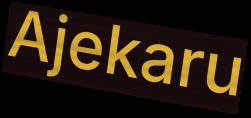
Ajekaru